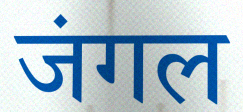
जंगल